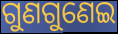
ଗୁଣଗୁଣେଇ